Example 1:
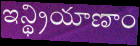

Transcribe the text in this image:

ఇన్థ్రియాణాం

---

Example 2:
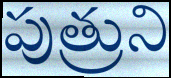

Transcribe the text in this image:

పుత్రుని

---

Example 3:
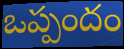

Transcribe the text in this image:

ఒప్పందం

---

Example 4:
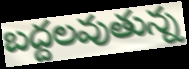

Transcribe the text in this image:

బద్దలవుతున్న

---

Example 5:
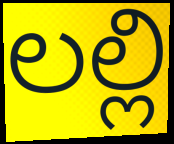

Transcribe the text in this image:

లల్లి